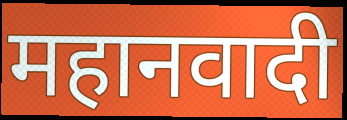
महानवादी